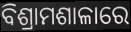
ବିଶ୍ରାମଶାଳାରେ